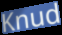
Knud